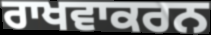
ਰਾਖਵਾਕਰਨ